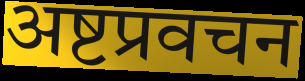
अष्टप्रवचन